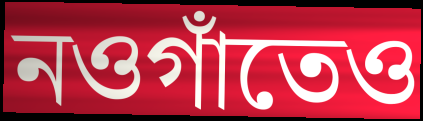
নওগাঁতেও